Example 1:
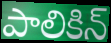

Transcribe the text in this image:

పాలికిన్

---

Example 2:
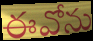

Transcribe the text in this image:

ఈవోను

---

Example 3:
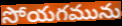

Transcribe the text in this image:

సోయగమును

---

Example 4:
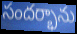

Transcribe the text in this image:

సందర్భాను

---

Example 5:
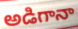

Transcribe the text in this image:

అడిగానా